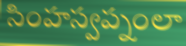
సింహస్వప్నంలా